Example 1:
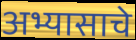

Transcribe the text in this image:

अभ्यासाचे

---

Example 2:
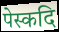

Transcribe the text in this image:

पेस्कदि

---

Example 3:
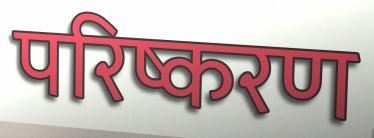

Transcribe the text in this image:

परिष्करण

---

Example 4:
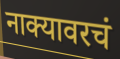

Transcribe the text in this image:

नाक्यावरचं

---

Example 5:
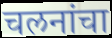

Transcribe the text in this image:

चलनांचा